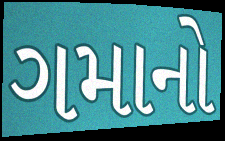
ગમાનો